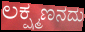
ಲಕ್ಷ್ಮಣನದು